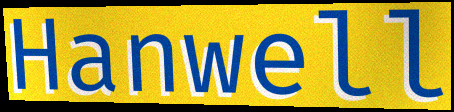
Hanwell